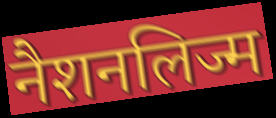
नैशनलिज्म